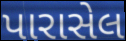
પારાસેલ